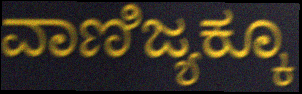
ವಾಣಿಜ್ಯಕ್ಕೂ